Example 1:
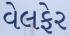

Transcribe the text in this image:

વેલફેર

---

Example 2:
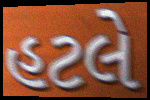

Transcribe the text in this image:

હટલે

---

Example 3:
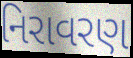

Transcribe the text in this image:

નિરાવરણ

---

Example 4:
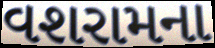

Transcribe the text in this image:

વશરામના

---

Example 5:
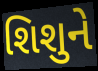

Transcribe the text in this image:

શિશુને